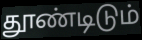
தூண்டிடும்